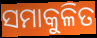
ସମାକୁଳିତ